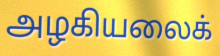
அழகியலைக்